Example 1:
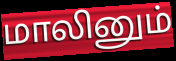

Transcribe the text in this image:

மாலினும்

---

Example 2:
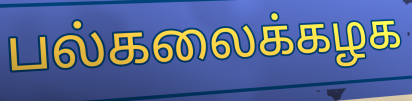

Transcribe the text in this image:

பல்கலைக்கழக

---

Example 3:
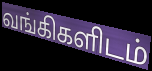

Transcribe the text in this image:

வங்கிகளிடம்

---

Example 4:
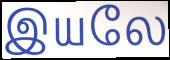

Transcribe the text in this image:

இயலே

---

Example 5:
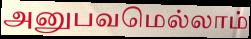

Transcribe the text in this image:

அனுபவமெல்லாம்